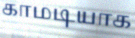
காமடியாக